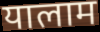
यालाम